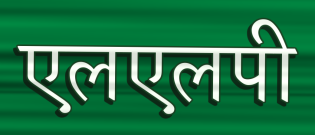
एलएलपी